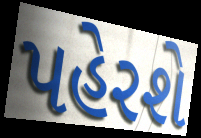
પહેરશે